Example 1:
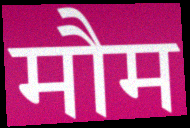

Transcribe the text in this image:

मौम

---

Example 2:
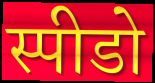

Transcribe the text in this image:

स्पीडो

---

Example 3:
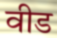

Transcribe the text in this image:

वीड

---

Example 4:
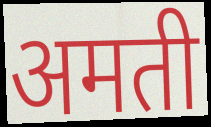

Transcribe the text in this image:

अमती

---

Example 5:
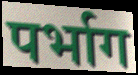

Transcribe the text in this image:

पर्भाग